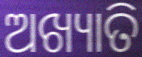
ଅଖ୍ୟାତି